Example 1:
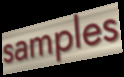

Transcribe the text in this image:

samples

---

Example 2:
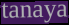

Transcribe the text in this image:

tanaya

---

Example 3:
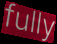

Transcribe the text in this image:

fully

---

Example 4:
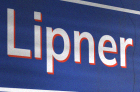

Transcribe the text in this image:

Lipner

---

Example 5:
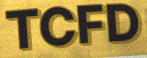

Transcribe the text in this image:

TCFD